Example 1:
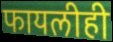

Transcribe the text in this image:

फायलीही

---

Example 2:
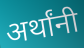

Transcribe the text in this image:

अर्थांनी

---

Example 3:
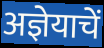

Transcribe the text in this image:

अज्ञेयाचें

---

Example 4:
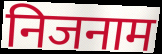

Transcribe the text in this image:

निजनाम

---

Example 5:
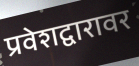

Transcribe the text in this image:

प्रवेशद्वारावर